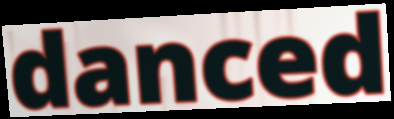
danced